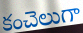
కంచెలుగా